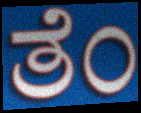
ತೆಂ